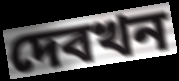
দেবখন